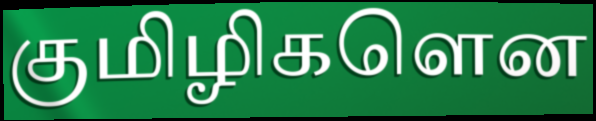
குமிழிகளென